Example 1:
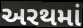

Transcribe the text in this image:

અરથમાં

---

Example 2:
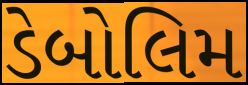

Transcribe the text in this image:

ડેબોલિમ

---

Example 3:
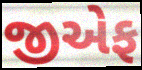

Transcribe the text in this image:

જીએફ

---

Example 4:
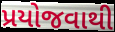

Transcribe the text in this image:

પ્રયોજવાથી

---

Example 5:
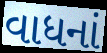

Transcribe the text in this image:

વાધનાં